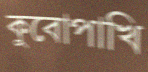
কুবোপাখি